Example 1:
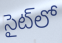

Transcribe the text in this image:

సైట్‌లో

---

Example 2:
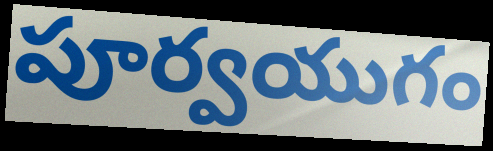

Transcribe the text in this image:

పూర్వయుగం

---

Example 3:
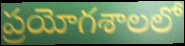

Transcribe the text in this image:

ప్రయోగశాలలో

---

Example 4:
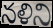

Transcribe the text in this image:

నళిని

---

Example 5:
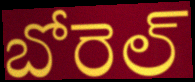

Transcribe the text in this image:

బోరెల్